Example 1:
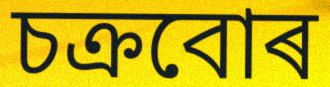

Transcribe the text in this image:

চক্ৰবোৰ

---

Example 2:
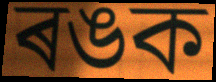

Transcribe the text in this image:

ৰঙক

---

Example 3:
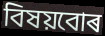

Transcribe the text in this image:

বিষয়বোৰ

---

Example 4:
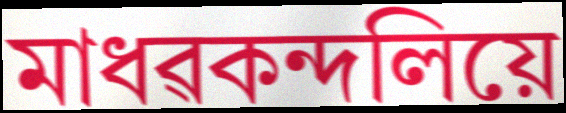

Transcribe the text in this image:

মাধৱকন্দলিয়ে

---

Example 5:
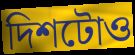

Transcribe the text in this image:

দিশটোও